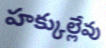
హక్కుల్లేవు